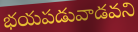
భయపడువాడవని